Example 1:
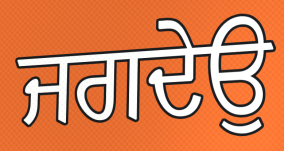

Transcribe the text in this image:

ਜਗਦੇਉ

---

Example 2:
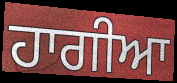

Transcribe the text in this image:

ਹਾਗੀਆ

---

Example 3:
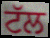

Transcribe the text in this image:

ਟੱਲ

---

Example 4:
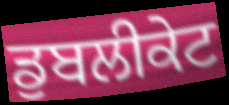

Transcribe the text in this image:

ਡੁਬਲੀਕੇਟ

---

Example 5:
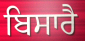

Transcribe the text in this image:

ਬਿਸਾਰੈ